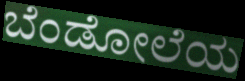
ಬೆಂಡೋಲೆಯ